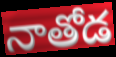
నాతోడ